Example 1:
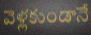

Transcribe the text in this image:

వెళ్లకుండానే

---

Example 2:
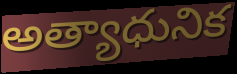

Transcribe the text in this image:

అత్యాధునిక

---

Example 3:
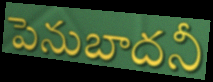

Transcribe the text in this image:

పెనుబాదనీ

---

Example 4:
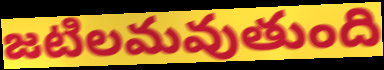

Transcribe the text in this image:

జటిలమవుతుంది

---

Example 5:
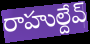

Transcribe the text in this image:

రాహుల్దేవ్